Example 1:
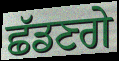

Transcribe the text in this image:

ਛੱਡਣਗੇ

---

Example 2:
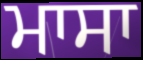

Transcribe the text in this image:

ਮਾਸਾ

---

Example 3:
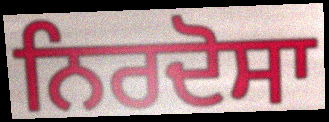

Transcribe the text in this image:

ਨਿਰਦੋਸਾ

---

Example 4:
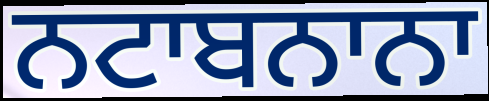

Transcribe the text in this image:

ਨਟਾਬਨਾਨਾ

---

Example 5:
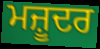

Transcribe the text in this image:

ਮਜ਼ੂਦਰ